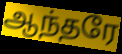
ஆந்தரே